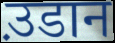
उ़डान